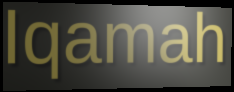
Iqamah